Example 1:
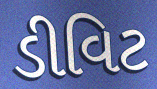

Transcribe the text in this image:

ડીવિટ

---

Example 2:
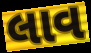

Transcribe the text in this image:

લાવ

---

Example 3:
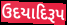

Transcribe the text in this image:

ઉદયાદિરૂપ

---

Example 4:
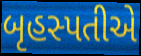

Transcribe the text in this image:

બૃહસ્પતીએ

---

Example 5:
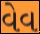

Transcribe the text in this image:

વેવ